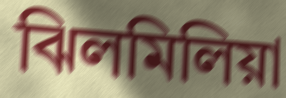
ঝিলমিলিয়া